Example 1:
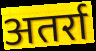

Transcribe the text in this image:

अतर्रा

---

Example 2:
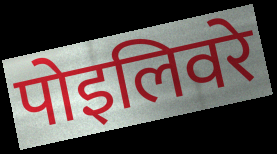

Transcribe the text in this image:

पोइलिवरे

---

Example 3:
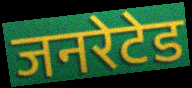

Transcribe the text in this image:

जनरेटेड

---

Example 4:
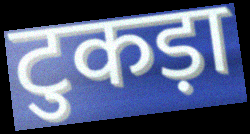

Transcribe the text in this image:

टुकड़ा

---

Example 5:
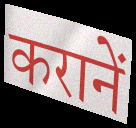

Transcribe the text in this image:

करानें